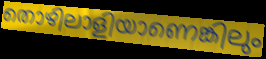
തൊഴിലാളിയാണെങ്കിലും